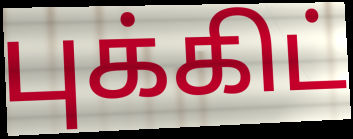
புக்கிட்